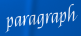
paragraph